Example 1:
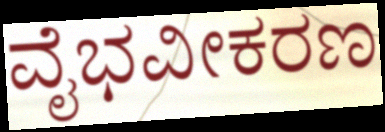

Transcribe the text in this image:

ವೈಭವೀಕರಣ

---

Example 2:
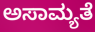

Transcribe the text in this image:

ಅಸಾಮ್ಯತೆ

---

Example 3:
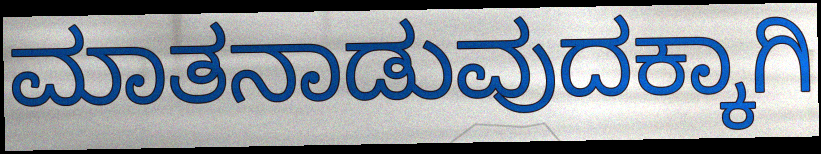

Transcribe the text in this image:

ಮಾತನಾಡುವುದಕ್ಕಾಗಿ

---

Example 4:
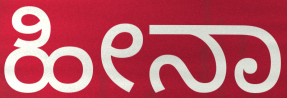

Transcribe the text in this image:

ಹೀನಾ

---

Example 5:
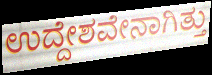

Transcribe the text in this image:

ಉದ್ದೇಶವೇನಾಗಿತ್ತು